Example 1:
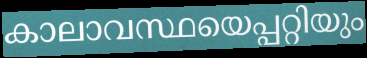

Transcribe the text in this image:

കാലാവസ്ഥയെപ്പറ്റിയും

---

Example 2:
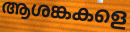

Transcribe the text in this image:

ആശങ്കകളെ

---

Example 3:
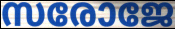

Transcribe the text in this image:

സരോജേ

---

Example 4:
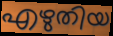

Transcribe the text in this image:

എഴുതിയ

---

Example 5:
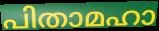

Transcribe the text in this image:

പിതാമഹാ